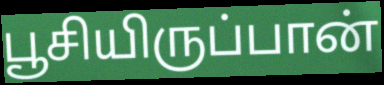
பூசியிருப்பான்